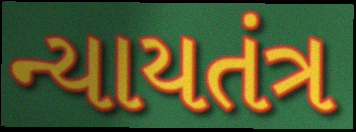
ન્યાયતંત્ર